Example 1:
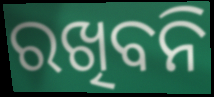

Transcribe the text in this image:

ରଖିବନି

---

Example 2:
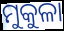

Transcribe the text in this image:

ମୁକୁଳା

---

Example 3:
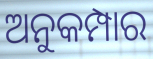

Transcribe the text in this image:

ଅନୁକମ୍ପାର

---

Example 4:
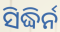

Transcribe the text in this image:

ସିଦ୍ଧିର୍ନ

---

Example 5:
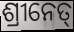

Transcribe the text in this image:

ଶ୍ରୀନେତ୍